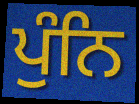
ਪੁੰਨਿ